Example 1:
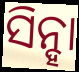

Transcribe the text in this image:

ସିନ୍ହା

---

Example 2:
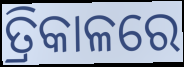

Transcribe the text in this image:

ତ୍ରିକାଳରେ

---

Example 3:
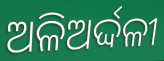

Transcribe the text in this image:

ଅଳିଅର୍ଦ୍ଦଳୀ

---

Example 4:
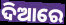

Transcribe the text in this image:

ଦିଆରେ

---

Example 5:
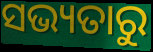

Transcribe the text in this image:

ସଭ୍ୟତାରୁ